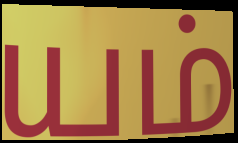
யம்